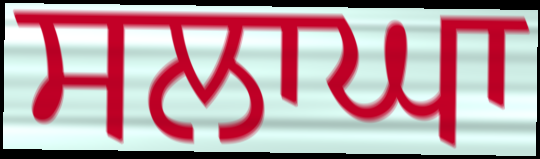
ਸਲਾਘਾ